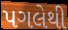
પગલેથી